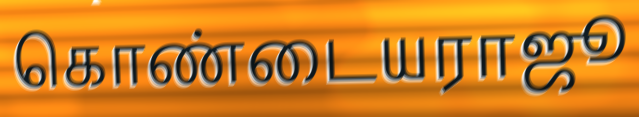
கொண்டையராஜூ